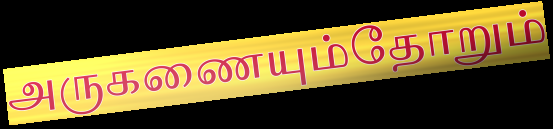
அருகணையும்தோறும்